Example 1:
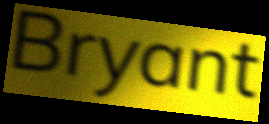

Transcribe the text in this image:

Bryant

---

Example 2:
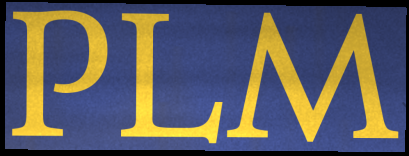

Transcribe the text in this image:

PLM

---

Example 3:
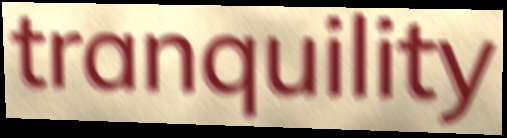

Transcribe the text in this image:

tranquility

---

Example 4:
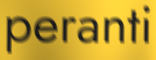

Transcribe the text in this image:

peranti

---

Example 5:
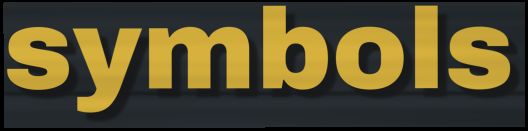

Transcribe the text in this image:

symbols